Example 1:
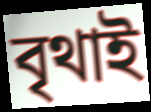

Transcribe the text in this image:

বৃথাই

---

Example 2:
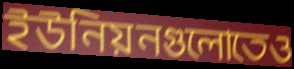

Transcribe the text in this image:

ইউনিয়নগুলোতেও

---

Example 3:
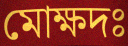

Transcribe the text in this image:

মোক্ষদঃ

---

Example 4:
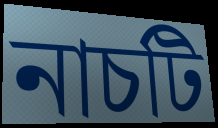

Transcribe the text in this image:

নাচটি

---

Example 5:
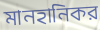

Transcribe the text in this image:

মানহানিকর